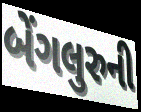
બેંગલુરુની